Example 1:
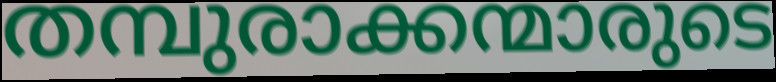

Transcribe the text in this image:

തമ്പുരാക്കന്മാരുടെ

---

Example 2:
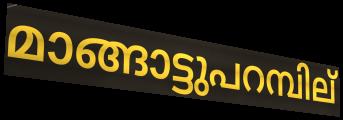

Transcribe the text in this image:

മാങ്ങാട്ടുപറമ്പില്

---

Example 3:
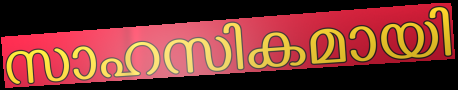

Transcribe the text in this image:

സാഹസികമായി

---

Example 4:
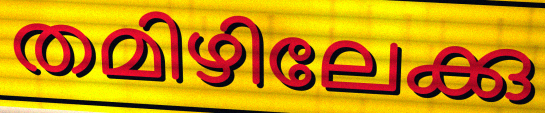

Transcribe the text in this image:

തമിഴിലേക്കു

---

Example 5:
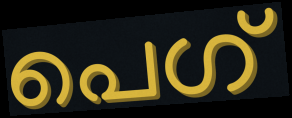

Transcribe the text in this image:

പെഗ്